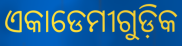
ଏକାଡେମୀଗୁଡ଼ିକ